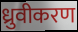
ध्रुवीकरण